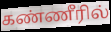
கண்ணீரில்